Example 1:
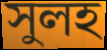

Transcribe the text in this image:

সুলহ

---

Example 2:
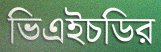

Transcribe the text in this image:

ভিএইচডির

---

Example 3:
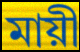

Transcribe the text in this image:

মায়ী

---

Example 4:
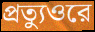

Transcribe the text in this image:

প্রত্যুওরে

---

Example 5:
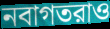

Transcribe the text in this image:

নবাগতরাও